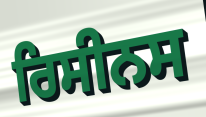
ਰਿਸੀਨਸ